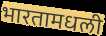
भारतामधली